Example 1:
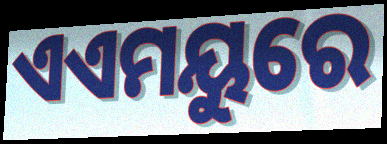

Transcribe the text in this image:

ଏଏମୟୁରେ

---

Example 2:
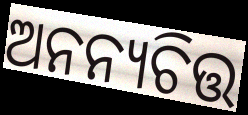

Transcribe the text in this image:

ଅନନ୍ୟଚିତ୍ତ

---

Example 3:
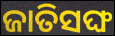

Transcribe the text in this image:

ଜାତିସଙ୍ଘ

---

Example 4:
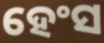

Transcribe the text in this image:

ହେଂସ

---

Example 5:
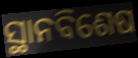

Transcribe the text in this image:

ସ୍ଥାନବିଶେଷ